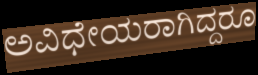
ಅವಿಧೇಯರಾಗಿದ್ದರೂ